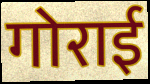
गोराई